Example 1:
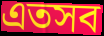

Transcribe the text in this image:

এতসব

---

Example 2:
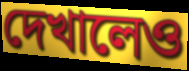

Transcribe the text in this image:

দেখালেও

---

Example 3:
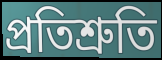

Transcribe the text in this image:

প্রতিশ্রুতি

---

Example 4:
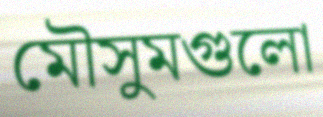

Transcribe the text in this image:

মৌসুমগুলো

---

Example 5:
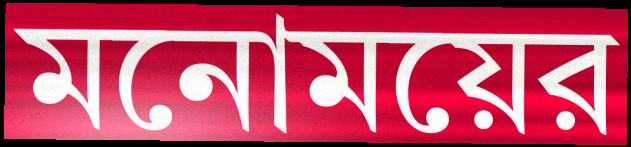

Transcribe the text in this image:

মনোময়ের